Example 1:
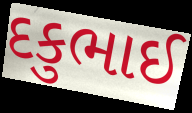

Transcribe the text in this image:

દકુભાઈ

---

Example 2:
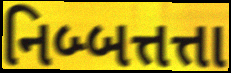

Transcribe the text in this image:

નિબ્બત્તત્તા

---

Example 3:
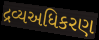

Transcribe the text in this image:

દ્રવ્યઅધિકરણ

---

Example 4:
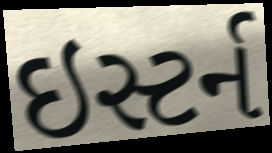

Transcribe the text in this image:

ઇસ્ટર્ન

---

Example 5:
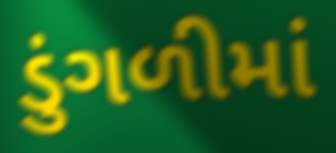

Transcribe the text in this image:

ડુંગળીમાં